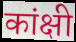
कांक्षी